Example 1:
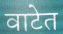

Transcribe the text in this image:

वाटेत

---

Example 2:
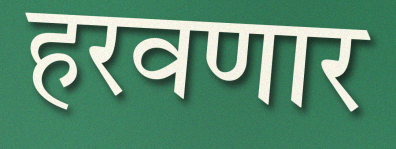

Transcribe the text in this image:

हरवणार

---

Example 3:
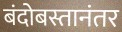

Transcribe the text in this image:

बंदोबस्तानंतर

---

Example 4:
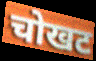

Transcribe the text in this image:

चोखट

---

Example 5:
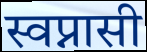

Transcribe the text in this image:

स्वप्नासी